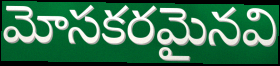
మోసకరమైనవి